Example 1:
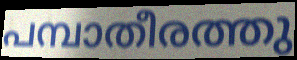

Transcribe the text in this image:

പമ്പാതീരത്തു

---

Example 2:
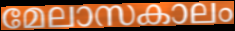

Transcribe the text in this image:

മേലാസകാലം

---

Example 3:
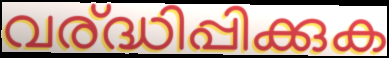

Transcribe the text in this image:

വര്ദ്ധിപ്പിക്കുക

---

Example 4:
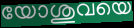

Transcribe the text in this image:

യോശുവയെ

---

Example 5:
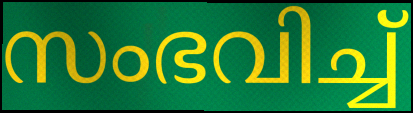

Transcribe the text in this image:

സംഭവിച്ച്